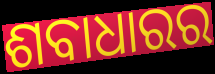
ଶବାଧାରର